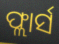
ଫ୍ଲାର୍ସ